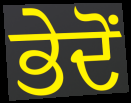
ਭੇਦੋਂ